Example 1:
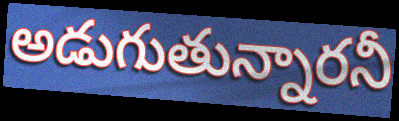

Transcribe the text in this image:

అడుగుతున్నారనీ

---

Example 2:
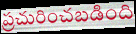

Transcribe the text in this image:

ప్రచురించబడింది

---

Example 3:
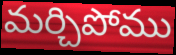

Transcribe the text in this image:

మర్చిపోము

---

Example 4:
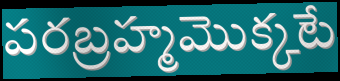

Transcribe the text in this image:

పరబ్రహ్మమొక్కటే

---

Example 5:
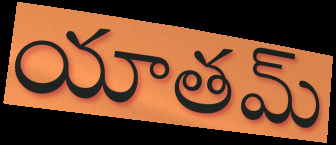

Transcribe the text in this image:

యాతమ్